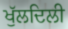
ਖੁੱਲਦਿਲੀ